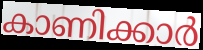
കാണിക്കാർ